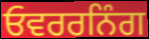
ਓਵਰਰਨਿੰਗ